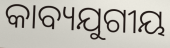
କାବ୍ୟଯୁଗୀୟ